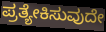
ಪ್ರತ್ಯೇಕಿಸುವುದೇ